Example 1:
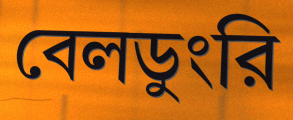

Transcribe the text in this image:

বেলডুংরি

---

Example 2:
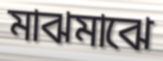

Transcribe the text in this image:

মাঝমাঝে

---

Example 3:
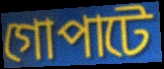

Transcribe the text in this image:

গোপাটে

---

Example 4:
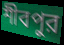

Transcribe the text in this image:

শীবপুর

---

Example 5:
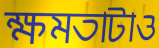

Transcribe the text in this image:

ক্ষমতাটাও